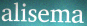
alisema